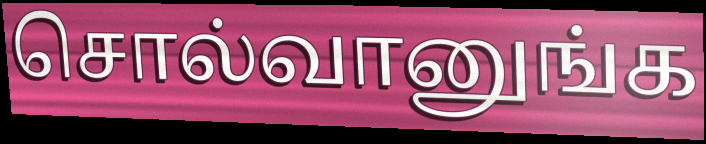
சொல்வானுங்க